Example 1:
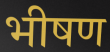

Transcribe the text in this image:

भीषण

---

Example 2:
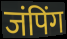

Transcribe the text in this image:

जंपिंग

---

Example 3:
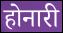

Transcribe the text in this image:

होनारी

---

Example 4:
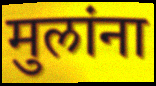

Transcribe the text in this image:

मुलांना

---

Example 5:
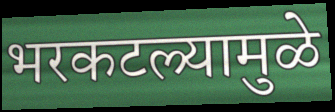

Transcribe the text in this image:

भरकटल्यामुळे